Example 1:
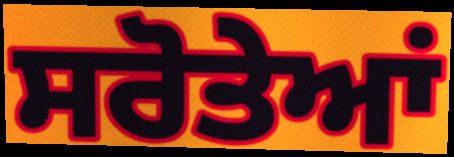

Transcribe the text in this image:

ਸਰੋਤੇਆਂ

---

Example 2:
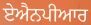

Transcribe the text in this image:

ਏਐਨਪੀਆਰ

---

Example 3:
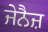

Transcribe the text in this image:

ਜੇਨੈਜ਼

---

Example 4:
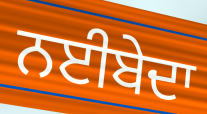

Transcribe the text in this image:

ਨਈਬੇਦਾ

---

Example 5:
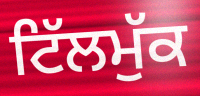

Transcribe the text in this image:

ਟਿੱਲਮੁੱਕ